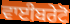
ਵਾਈਬਰੇਟੋ